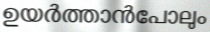
ഉയർത്താൻപോലും